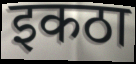
इकठा